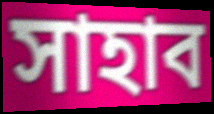
সাহাব